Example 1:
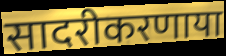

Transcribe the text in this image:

सादरीकरणाया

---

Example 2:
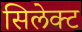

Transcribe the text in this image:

सिलेक्ट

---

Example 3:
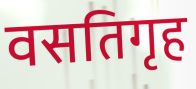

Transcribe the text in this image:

वसतिगृह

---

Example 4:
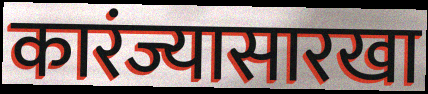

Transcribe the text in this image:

कारंज्यासारखा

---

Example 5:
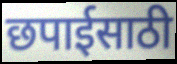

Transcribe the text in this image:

छपाईसाठी